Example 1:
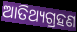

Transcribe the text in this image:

ଆତିଥ୍ୟଗ୍ରହଣ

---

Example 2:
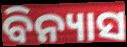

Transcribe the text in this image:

ବିନ୍ୟାସ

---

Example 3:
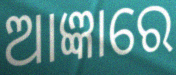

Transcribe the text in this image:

ଆଜ୍ଞାରେ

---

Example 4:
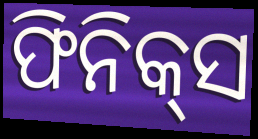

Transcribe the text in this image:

ଫିନିକ୍‍ସ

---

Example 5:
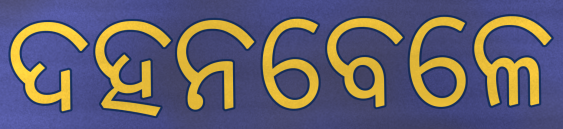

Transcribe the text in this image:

ଦହନବେଳେ